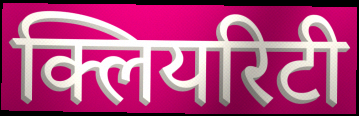
क्लियरिटी